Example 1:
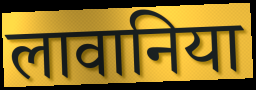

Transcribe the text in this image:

लावानिया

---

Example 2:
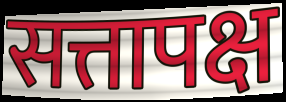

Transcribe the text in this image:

सत्तापक्ष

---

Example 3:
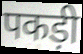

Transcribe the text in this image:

पकड़ी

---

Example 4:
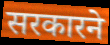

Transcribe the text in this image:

सरकारने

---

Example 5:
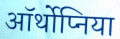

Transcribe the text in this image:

ऑर्थोप्निया